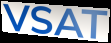
VSAT